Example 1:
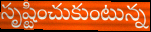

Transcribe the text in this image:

సృష్టించుకుంటున్న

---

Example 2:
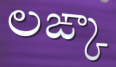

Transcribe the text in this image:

లఙ్కా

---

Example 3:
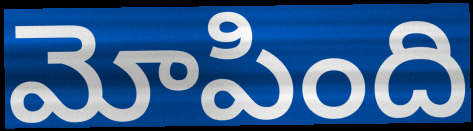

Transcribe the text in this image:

మోపింది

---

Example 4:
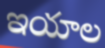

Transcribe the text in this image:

ఇయాల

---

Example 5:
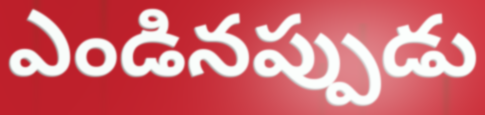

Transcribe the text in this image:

ఎండినప్పుడు